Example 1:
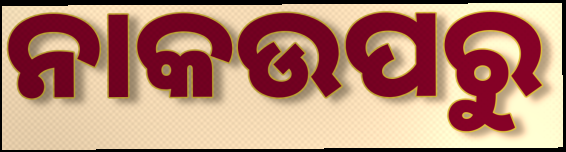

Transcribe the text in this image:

ନାକଉପରୁ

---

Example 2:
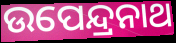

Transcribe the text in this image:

ଉପେନ୍ଦ୍ରନାଥ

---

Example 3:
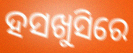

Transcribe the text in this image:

ହସଖୁସିରେ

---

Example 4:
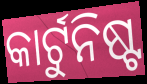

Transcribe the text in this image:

କାର୍ଟୁନିଷ୍ଟ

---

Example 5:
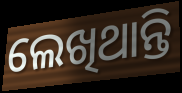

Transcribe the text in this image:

ଲେଖିଥାନ୍ତି